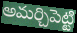
అమర్చిపెట్టి